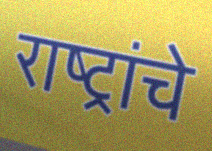
राष्ट्रांचे